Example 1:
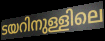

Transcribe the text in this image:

ടയറിനുള്ളിലെ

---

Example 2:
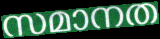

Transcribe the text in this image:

സമാനത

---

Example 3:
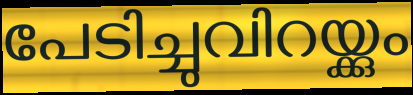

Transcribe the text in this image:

പേടിച്ചുവിറയ്ക്കും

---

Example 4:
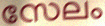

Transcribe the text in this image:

സേലം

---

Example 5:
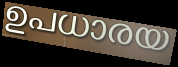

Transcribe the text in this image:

ഉപധാരയ